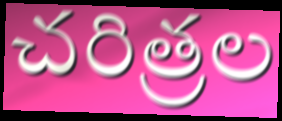
చరిత్రల